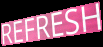
REFRESH